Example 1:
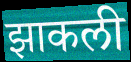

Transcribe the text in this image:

झाकली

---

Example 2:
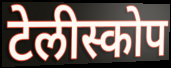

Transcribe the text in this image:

टेलीस्कोप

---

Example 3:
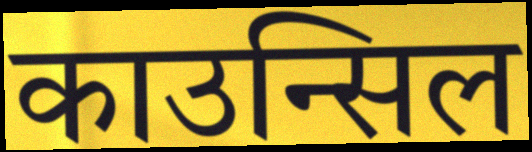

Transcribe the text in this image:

काउन्सिल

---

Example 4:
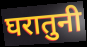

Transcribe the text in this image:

घरातुनी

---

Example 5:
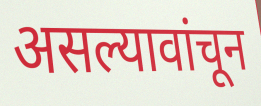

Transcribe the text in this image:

असल्यावांचून